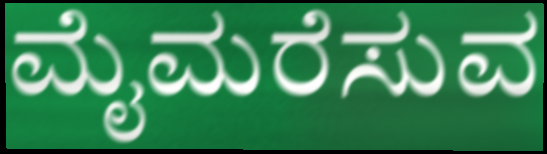
ಮೈಮರೆಸುವ